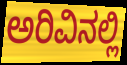
ಅರಿವಿನಲ್ಲಿ